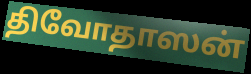
திவோதாஸன்